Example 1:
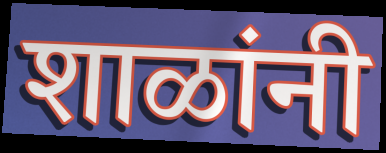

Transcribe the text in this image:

शाळांनी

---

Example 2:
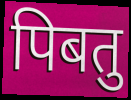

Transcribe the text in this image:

पिबतु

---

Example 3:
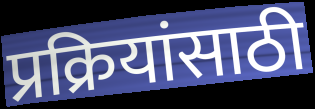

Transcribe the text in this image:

प्रक्रियांसाठी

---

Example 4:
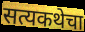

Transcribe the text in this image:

सत्यकथेचा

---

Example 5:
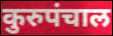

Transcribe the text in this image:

कुरुपंचाल